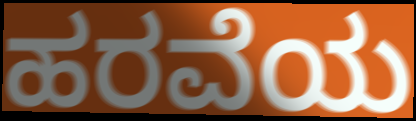
ಹರವೆಯ